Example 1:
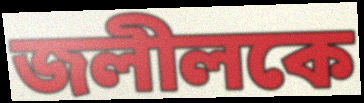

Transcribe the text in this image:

জলীলকে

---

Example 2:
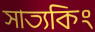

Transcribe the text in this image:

সাত্যকিং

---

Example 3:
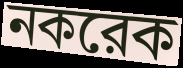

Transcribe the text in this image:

নকরেক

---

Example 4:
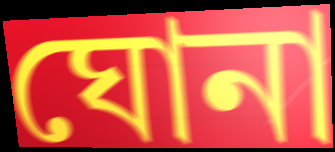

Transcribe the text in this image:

ঘোনা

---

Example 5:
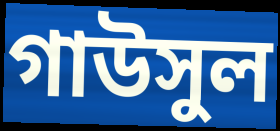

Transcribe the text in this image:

গাউসুল